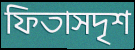
ফিতাসদৃশ